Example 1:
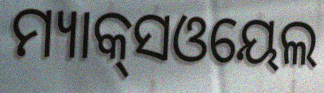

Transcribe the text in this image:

ମ୍ୟାକ୍‌ସଓୟେଲ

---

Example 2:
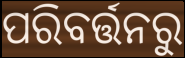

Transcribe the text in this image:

ପରିବର୍ତ୍ତନରୁ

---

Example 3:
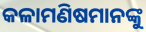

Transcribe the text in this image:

କଳାମଣିଷମାନଙ୍କୁ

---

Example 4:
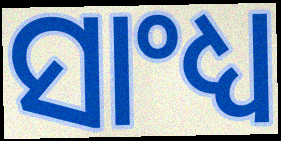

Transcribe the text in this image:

ସାଂଧ୍ୟ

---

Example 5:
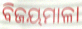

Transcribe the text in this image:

ବିଜୟମାଳା